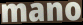
mano